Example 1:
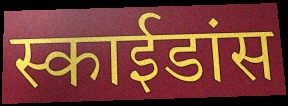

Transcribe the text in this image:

स्काईडांस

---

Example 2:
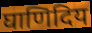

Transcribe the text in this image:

घाणिदिय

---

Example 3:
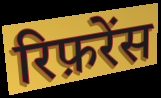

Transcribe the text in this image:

रिफ़रेंस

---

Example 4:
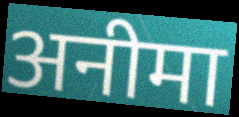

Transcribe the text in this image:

अनीमा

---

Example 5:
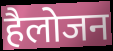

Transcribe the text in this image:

हैलोजन